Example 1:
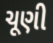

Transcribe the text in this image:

ચૂણી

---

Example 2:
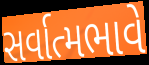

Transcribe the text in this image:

સર્વાત્મભાવે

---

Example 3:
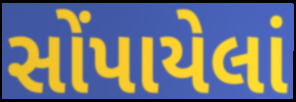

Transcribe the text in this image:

સોંપાયેલાં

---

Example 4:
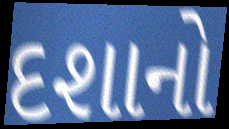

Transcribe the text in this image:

દશાનો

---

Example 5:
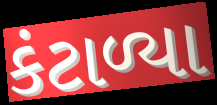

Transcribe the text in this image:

કંટાળ્યા